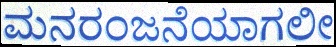
ಮನರಂಜನೆಯಾಗಲೀ